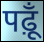
पढ़ूँ